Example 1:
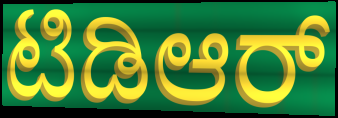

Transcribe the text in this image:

ಟಿಡಿಆರ್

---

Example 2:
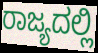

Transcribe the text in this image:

ರಾಜ್ಯದಲ್ಲಿ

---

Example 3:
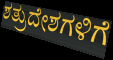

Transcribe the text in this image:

ಶತ್ರುದೇಶಗಳಿಗೆ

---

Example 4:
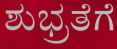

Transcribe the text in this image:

ಶುಭ್ರತೆಗೆ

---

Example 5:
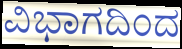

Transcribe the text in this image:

ವಿಭಾಗದಿಂದ